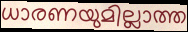
ധാരണയുമില്ലാത്ത